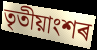
তৃতীয়াংশৰ